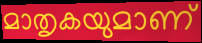
മാതൃകയുമാണ്